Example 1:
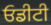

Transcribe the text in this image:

ਓਡੀਟੀ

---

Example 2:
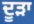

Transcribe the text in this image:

ਦੂੜਾ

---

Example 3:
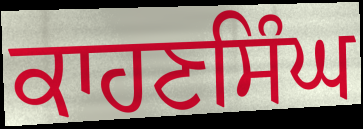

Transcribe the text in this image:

ਕਾਹਣਸਿੰਘ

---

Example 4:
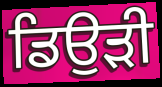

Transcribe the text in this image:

ਡਿਉੜੀ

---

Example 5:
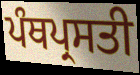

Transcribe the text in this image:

ਪੰਥਪ੍ਰਸਤੀ